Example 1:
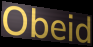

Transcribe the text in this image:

Obeid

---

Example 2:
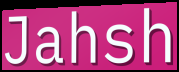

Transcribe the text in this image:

Jahsh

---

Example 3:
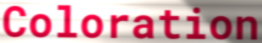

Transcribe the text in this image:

Coloration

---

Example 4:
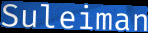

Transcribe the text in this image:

Suleiman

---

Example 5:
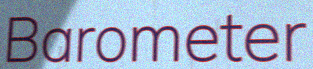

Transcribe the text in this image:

Barometer